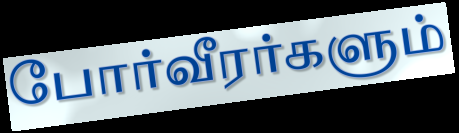
போர்வீரர்களும்